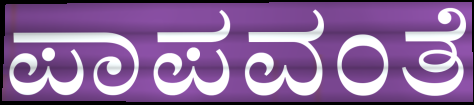
ಪಾಪವಂತೆ